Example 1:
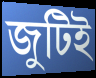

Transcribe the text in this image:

জুটিই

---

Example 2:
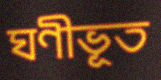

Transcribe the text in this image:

ঘণীভূত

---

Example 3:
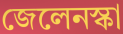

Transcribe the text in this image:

জেলেনস্কা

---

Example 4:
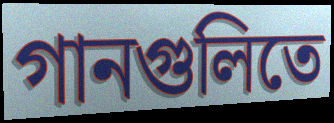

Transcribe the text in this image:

গানগুলিতে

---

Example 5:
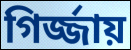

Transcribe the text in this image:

গির্জ্জায়